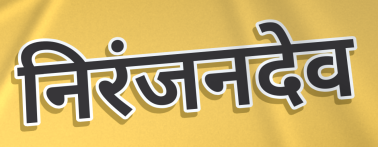
निरंजनदेव